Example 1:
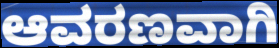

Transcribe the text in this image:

ಆವರಣವಾಗಿ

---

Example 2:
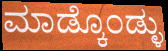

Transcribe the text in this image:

ಮಾಡ್ಕೊಂಡ್ಳು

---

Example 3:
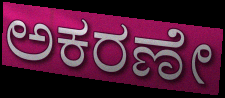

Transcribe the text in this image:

ಅಕರಣೇ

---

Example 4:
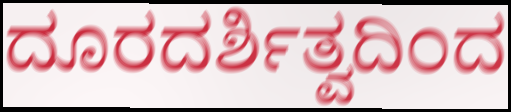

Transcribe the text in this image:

ದೂರದರ್ಶಿತ್ವದಿಂದ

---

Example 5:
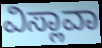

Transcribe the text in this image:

ವಿಸ್ಲಾವಾ